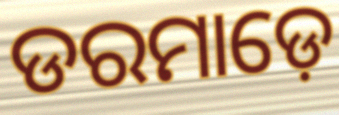
ଡରମାଡ଼େ